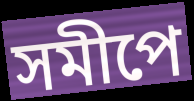
সমীপে